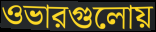
ওভারগুলোয়